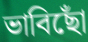
ভাবিছোঁ